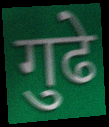
गुढे